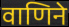
वाणिने